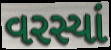
વરસ્યાં